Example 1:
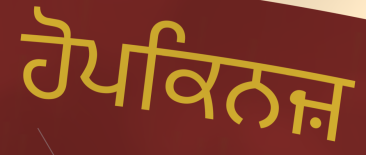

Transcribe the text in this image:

ਹੋਪਕਿਨਜ਼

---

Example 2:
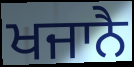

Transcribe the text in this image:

ਖਜਾਨੈ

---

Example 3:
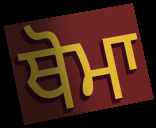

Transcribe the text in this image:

ਥੋਮਾ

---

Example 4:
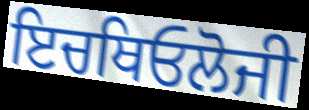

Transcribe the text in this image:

ਇਚਥਿਓਲੋਜੀ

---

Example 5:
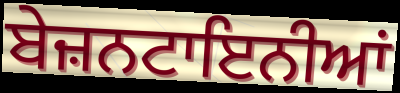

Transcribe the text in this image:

ਬੇਜ਼ਨਟਾਇਨੀਆਂ